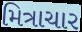
મિત્રાચાર